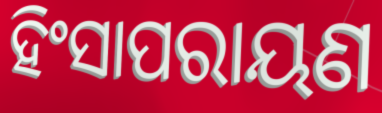
ହିଂସାପରାୟଣ